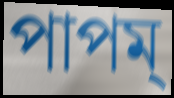
পাপম্